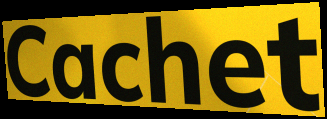
Cachet